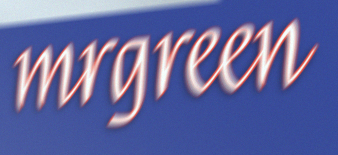
mrgreen